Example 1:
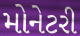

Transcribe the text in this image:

મોનેટરી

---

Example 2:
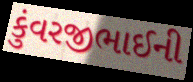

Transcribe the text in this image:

કુંવરજીભાઈની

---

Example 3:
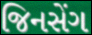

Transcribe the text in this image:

જિનસેંગ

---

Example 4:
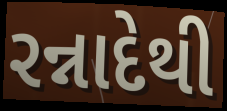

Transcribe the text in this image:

રન્નાદેથી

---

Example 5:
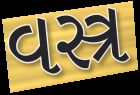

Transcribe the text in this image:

વસ્ત્ર